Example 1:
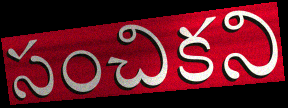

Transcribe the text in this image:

సంచికని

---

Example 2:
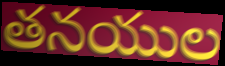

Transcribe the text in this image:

తనయుల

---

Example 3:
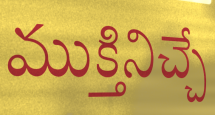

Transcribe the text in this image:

ముక్తినిచ్చే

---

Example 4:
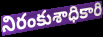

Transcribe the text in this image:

నిరంకుశాధికారి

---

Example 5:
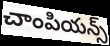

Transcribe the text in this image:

చాంపియన్స్